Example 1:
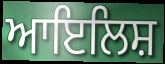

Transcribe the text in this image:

ਆਇਲਿਸ਼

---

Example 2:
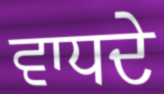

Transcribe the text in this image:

ਵਾਧਦੇ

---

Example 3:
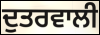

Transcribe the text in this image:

ਦੁਤਰਵਾਲੀ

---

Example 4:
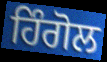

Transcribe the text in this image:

ਹਿੰਗੋਲ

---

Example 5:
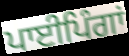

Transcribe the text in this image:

ਪਾਈਪਿੰਗਾਂ